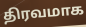
திரவமாக